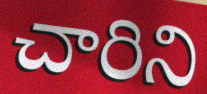
చారిని